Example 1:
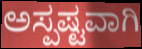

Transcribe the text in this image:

ಅಸ್ಪಷ್ಟವಾಗಿ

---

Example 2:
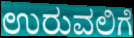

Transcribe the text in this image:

ಉರುವಲಿಗೆ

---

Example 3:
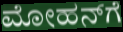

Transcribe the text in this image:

ಮೋಹನ್‌ಗೆ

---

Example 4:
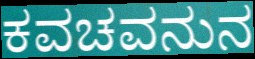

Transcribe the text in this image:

ಕವಚವನುನ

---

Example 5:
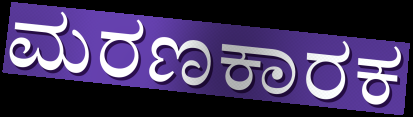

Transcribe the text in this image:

ಮರಣಕಾರಕ